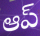
ఆప్